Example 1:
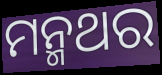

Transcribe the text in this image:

ମନ୍ମଥର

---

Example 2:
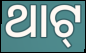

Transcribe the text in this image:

ଥାଟ୍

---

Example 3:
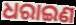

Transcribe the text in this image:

ଧରାଇଣ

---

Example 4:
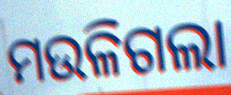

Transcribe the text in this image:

ମଉଳିଗଲା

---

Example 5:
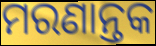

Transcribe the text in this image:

ମରଣାନ୍ତକ